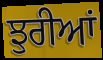
ਝੁਰੀਆਂ